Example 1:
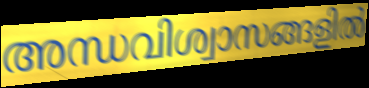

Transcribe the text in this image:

അന്ധവിശ്വാസങ്ങളിൽ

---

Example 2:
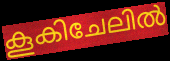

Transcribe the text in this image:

കൂകിചേലിൽ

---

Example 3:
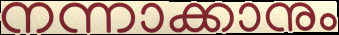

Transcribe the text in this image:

നന്നാക്കാനും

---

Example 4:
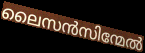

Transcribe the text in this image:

ലൈസൻസിന്മേൽ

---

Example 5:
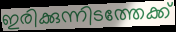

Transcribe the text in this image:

ഇരിക്കുന്നിടത്തേക്ക്